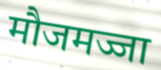
मौजमज्जा